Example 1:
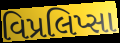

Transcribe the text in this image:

વિપ્રલિપ્સા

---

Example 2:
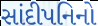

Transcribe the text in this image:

સાંદીપનિનો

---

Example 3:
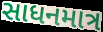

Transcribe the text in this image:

સાધનમાત્ર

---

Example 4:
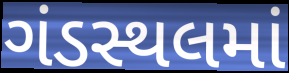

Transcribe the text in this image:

ગંડસ્થલમાં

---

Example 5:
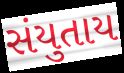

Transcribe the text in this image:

સંયુતાય